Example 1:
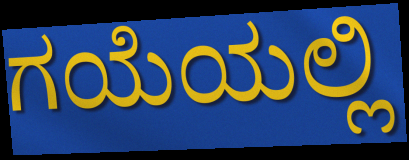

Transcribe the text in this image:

ಗಯೆಯಲ್ಲಿ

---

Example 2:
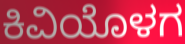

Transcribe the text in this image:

ಕಿವಿಯೊಳಗ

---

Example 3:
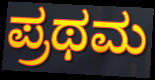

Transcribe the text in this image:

ಪ್ರಥಮ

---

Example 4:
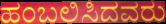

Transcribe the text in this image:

ಹಂಬಲಿಸಿದವರು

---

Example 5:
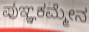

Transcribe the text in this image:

ಪುಞ್ಞಕಮ್ಮೇನ